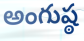
అంగుష్ఠ